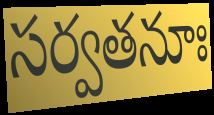
సర్వతనూః